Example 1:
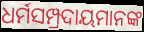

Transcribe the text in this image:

ଧର୍ମସମ୍ପ୍ରଦାୟମାନଙ୍କ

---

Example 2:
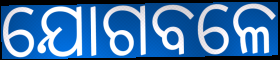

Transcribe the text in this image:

ଯୋଗବଳେ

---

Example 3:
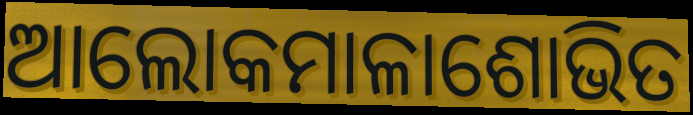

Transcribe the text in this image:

ଆଲୋକମାଳାଶୋଭିତ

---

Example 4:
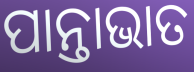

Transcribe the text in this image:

ପାନ୍ତାଭାତ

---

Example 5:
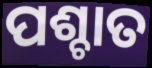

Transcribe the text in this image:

ପଶ୍ଚାତ